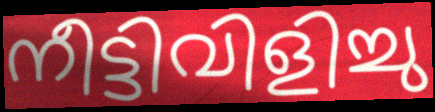
നീട്ടിവിളിച്ചു